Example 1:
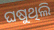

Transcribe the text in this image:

ଘଷୁଥିଲି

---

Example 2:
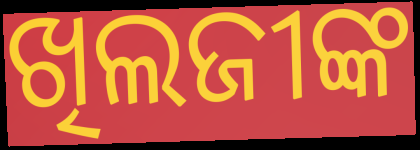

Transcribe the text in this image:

ଖିଲଜୀଙ୍କ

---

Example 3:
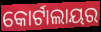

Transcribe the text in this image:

କୋର୍ଟାଲାୟର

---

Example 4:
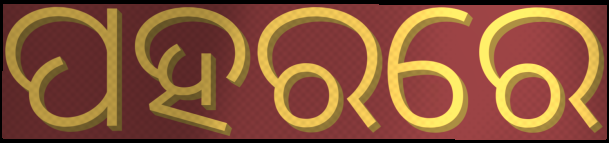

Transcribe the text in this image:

ପହରରେ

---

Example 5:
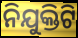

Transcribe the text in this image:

ନିଯୁକ୍ତିଟି